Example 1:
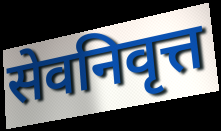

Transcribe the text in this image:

सेवनिवृत्त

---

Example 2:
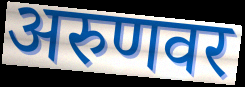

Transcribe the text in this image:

अरुणवर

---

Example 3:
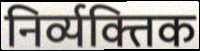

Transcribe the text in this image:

निर्व्यक्तिक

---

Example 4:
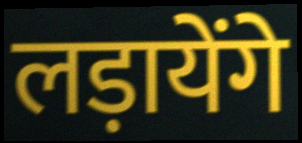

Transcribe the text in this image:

लड़ायेंगे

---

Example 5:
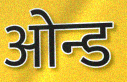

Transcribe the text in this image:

ओन्ड